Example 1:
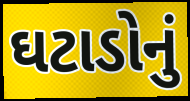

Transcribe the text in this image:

ઘટાડોનું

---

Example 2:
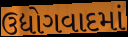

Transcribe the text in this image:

ઉદ્યોગવાદમાં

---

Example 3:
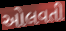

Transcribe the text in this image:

ઓલવતી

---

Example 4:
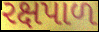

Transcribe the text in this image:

રક્ષપાળ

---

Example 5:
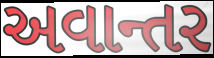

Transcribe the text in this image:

અવાન્તર